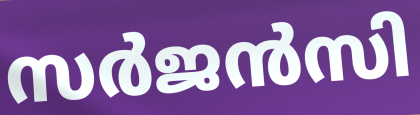
സർജൻസി